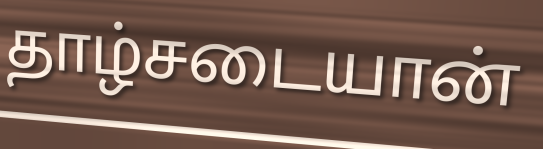
தாழ்சடையான்